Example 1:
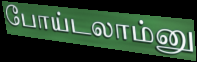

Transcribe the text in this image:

போய்டலாம்னு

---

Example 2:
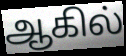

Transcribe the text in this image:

ஆகில்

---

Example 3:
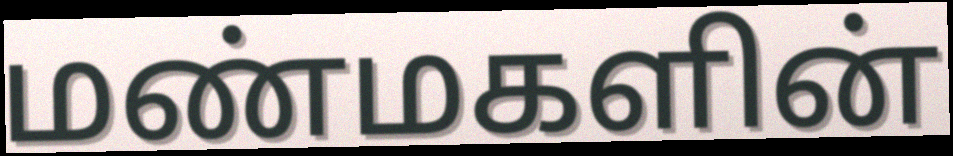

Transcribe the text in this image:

மண்மகளின்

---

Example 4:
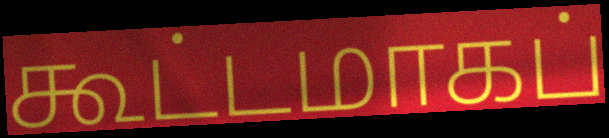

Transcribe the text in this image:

கூட்டமாகப்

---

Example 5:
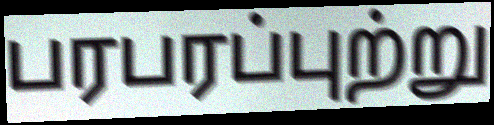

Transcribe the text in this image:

பரபரப்புற்று